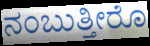
ನಂಬುತ್ತೀರೊ